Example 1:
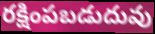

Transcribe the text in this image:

రక్షింపబడుదువు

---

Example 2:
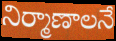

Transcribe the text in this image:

నిర్మాణాలనే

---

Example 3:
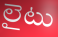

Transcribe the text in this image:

లైటు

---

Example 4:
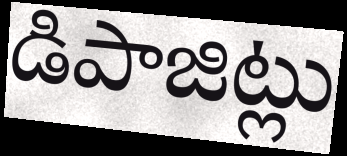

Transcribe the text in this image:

డిపాజిట్లు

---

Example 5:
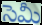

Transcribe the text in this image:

సెమీ